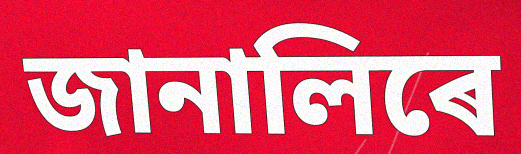
জানালিৰে